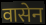
वासेन